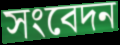
সংবেদন